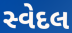
સ્વેદલ